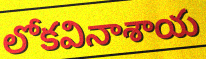
లోకవినాశాయ